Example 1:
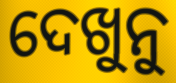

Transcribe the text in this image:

ଦେଖୁନୁ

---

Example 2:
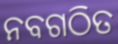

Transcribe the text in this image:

ନବଗଠିତ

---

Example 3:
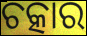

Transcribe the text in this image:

ଚତ୍କାର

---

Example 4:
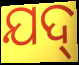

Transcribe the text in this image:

ଯଦ୍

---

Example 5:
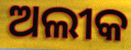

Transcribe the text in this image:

ଅଲୀକ